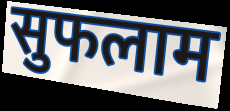
सुफलाम